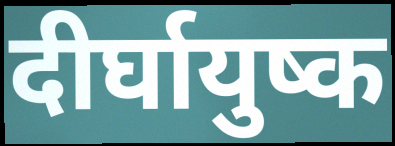
दीर्घायुष्क